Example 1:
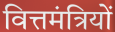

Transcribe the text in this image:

वित्तमंत्रियों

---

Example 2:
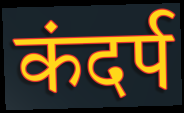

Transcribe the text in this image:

कंदर्प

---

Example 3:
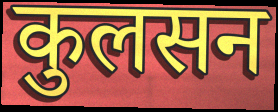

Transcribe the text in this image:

कुलसन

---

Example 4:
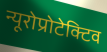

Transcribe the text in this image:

न्यूरोप्रोटेक्टिव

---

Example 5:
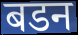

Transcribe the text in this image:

बडन